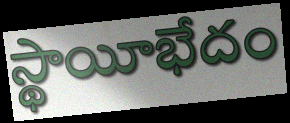
స్థాయీభేదం